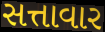
સત્તાવાર